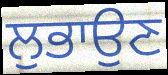
ਲੁਭਾਉਣ